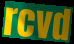
rcvd